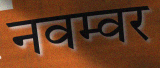
नवम्वर